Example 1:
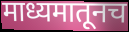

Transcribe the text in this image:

माध्यमातूनच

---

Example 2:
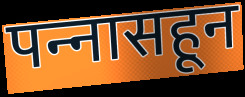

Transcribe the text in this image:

पन्नासहून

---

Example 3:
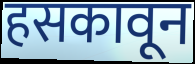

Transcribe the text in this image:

हसकावून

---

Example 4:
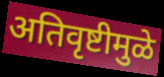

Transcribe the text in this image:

अतिवृष्टीमुळे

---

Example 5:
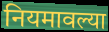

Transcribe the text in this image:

नियमावल्या